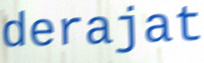
derajat